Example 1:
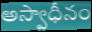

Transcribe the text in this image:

అస్వాధీనం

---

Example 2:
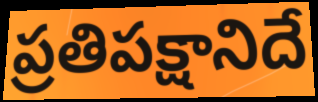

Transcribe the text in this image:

ప్రతిపక్షానిదే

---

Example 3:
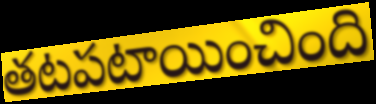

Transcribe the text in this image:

తటపటాయించింది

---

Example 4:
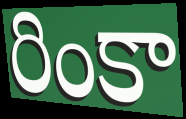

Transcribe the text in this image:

రింకా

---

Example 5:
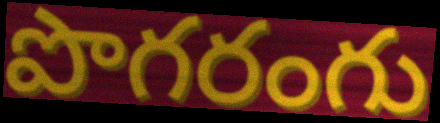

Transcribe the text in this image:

పొగరంగు